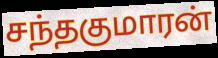
சந்தகுமாரன்